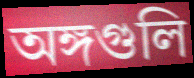
অঙ্গগুলি